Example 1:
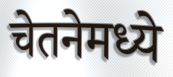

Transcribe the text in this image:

चेतनेमध्ये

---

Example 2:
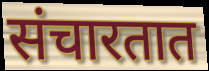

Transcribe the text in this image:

संचारतात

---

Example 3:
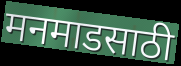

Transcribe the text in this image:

मनमाडसाठी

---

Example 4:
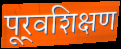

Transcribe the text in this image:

पूर्वशिक्षण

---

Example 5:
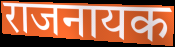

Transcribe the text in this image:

राजनायक